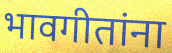
भावगीतांना